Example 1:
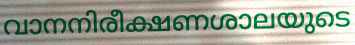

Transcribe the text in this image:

വാനനിരീക്ഷണശാലയുടെ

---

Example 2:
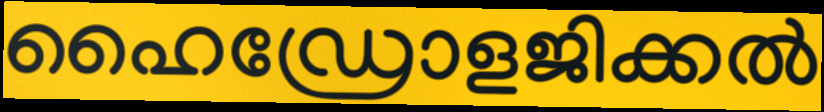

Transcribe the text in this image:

ഹൈഡ്രോളജിക്കൽ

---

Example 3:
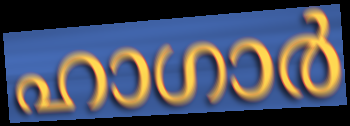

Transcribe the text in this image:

ഹാഗാർ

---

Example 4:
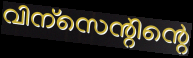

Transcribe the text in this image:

വിന്സെന്റിന്റെ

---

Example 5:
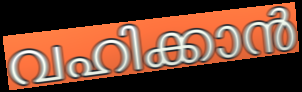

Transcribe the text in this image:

വഹിക്കാൻ